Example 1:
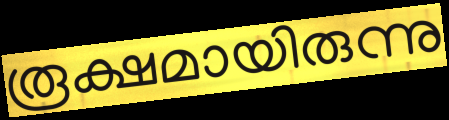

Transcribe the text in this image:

രൂക്ഷമായിരുന്നു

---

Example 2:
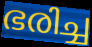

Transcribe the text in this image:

ഭരിച്ച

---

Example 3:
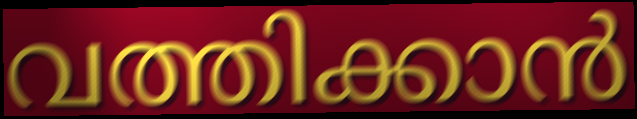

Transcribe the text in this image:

വത്തിക്കാൻ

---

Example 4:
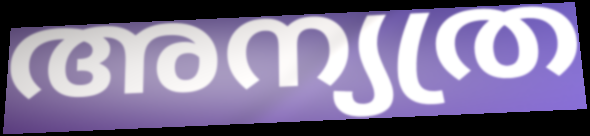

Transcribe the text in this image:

അന്യത്ര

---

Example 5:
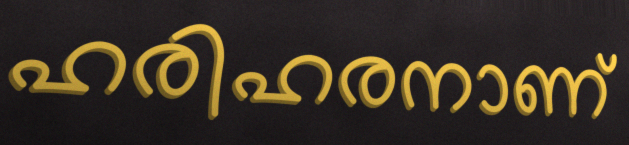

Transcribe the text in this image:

ഹരിഹരനാണ്